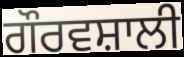
ਗੌਰਵਸ਼ਾਲੀ